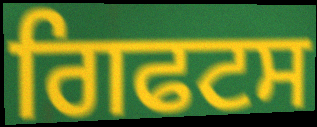
ਗਿਫਟਸ